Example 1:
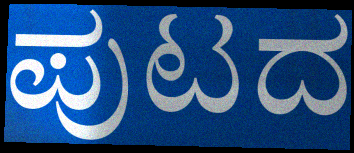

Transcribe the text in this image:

ಪುಟದ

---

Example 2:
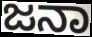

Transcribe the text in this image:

ಜನಾ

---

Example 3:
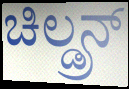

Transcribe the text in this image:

ಚಿಲ್ಡ್ರನ್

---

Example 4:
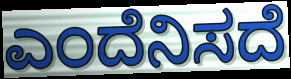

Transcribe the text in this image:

ಎಂದೆನಿಸದೆ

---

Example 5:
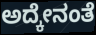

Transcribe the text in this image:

ಅದ್ಕೇನಂತೆ